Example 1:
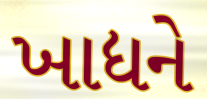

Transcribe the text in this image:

ખાદ્યને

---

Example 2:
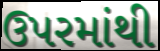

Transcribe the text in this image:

ઉપરમાંથી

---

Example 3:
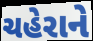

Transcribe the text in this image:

ચહેરાને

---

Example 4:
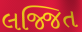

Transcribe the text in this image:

લજ્જિત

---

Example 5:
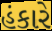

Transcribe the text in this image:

હંકારે